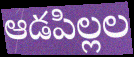
ఆడపిల్లల